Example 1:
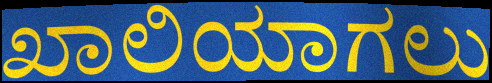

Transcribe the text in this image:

ಖಾಲಿಯಾಗಲು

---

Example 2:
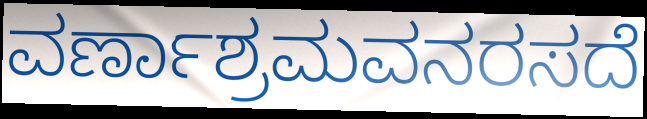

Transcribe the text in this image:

ವರ್ಣಾಶ್ರಮವನರಸದೆ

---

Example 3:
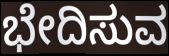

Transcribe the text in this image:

ಭೇದಿಸುವ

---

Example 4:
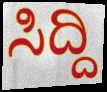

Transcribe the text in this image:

ಸಿದ್ದಿ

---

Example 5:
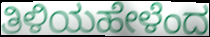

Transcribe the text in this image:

ತಿಳಿಯಹೇಳೆಂದ